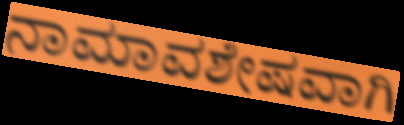
ನಾಮಾವಶೇಷವಾಗಿ